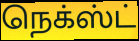
நெக்ஸ்ட்